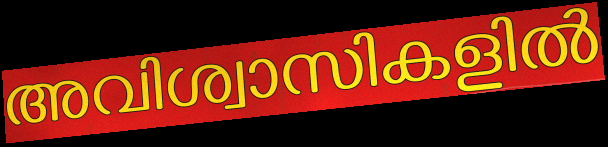
അവിശ്വാസികളിൽ